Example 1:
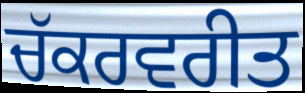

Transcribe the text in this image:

ਚੱਕਰਵਰੀਤ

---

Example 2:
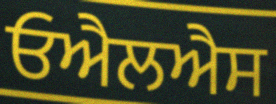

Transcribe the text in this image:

ਓਐਲਐਸ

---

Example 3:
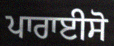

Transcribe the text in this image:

ਪਾਰਾਈਸੋ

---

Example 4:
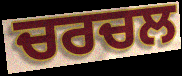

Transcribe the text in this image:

ਚਰਚਲ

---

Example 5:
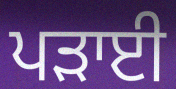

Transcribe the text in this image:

ਪੜਾਈ